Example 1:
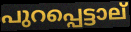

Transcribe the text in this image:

പുറപ്പെട്ടാല്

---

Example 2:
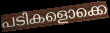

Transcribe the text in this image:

പടികളൊക്കെ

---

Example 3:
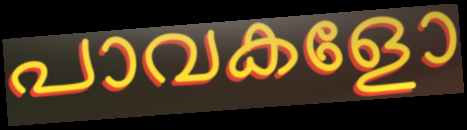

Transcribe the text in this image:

പാവകളോ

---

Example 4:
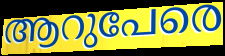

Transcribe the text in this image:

ആറുപേരെ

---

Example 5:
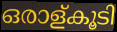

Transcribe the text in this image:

ഒരാള്കൂടി